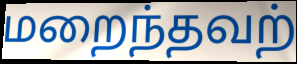
மறைந்தவற்